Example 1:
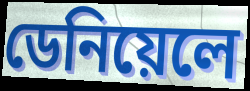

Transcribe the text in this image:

ডেনিয়েলে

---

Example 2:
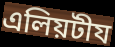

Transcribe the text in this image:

এলিয়টীয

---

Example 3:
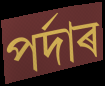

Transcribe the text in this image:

পৰ্দাৰ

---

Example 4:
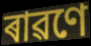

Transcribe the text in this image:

ৰাৱণে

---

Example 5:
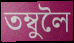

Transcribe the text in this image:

তম্বুলৈ